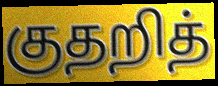
குதறித்